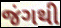
જંગથી